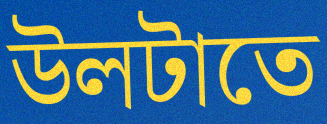
উলটাতে